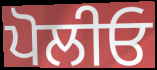
ਪੋਲੀਓ